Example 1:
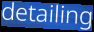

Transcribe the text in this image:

detailing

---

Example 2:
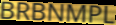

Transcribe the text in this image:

BRBNMPL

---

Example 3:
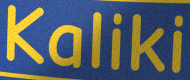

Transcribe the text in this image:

Kaliki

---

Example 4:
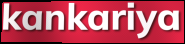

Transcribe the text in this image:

kankariya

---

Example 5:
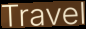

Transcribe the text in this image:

Travel